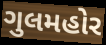
ગુલમહોર